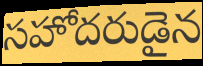
సహోదరుడైన